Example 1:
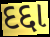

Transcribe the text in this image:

દદ્દા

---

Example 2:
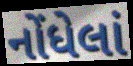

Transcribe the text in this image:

નોંધેલાં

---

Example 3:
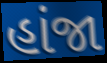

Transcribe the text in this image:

હાંજા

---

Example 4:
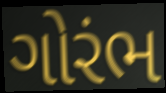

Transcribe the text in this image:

ગોરંભ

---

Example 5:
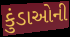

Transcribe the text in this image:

કુંડાઓની